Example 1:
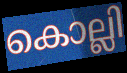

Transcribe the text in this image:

കൊല്ലി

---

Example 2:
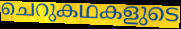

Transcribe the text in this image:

ചെറുകഥകളുടെ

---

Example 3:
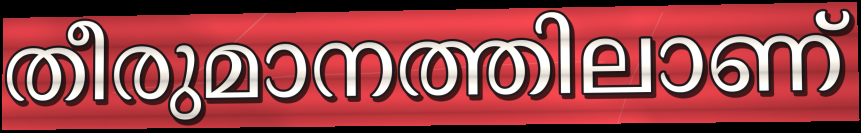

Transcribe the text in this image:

തീരുമാനത്തിലാണ്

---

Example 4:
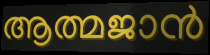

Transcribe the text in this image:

ആത്മജാൻ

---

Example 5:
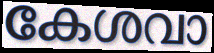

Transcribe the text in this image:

കേശവാ